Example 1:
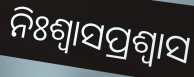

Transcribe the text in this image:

ନିଃଶ୍ୱାସପ୍ରଶ୍ୱାସ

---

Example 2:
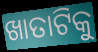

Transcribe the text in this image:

ଖାତାଟିକୁ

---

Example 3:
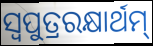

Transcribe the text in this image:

ସ୍ଵପୁତ୍ରରକ୍ଷାର୍ଥମ୍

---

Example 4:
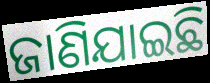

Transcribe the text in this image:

ଜାଣିଯାଇଛି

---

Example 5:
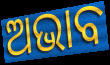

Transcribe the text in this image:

ଅଭାବ